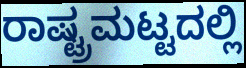
ರಾಷ್ಟ್ರಮಟ್ಟದಲ್ಲಿ